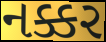
નક્કર